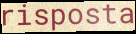
risposta